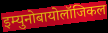
इम्युनोबायोलॉजिकल